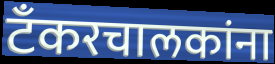
टँकरचालकांना